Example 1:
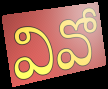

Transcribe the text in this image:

వివో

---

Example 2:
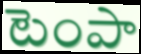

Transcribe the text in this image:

టెంపా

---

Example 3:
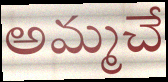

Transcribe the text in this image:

అమ్మచే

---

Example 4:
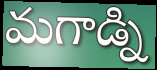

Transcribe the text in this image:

మగాడ్ని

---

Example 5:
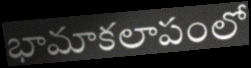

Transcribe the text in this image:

భామాకలాపంలో